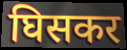
घिसकर